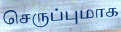
செருப்புமாக